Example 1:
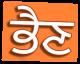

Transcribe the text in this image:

ਭੈਣ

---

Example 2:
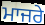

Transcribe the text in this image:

ਮਾਜਰੇ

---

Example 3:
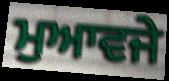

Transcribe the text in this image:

ਮੁਆਵਜੇ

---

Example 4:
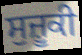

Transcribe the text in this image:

ਸੁਜ਼ੂਕੀ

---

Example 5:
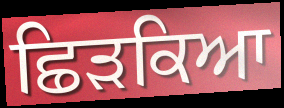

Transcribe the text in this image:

ਛਿੜਕਿਆ